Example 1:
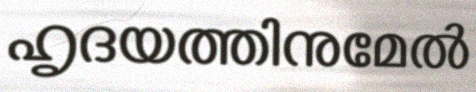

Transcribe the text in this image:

ഹൃദയത്തിനുമേൽ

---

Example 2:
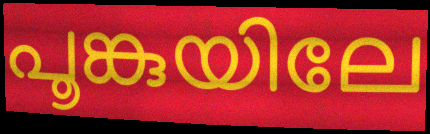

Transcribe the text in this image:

പൂങ്കുയിലേ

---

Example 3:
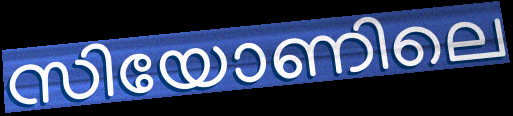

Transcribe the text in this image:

സിയോണിലെ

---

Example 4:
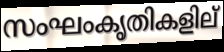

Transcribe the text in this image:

സംഘംകൃതികളില്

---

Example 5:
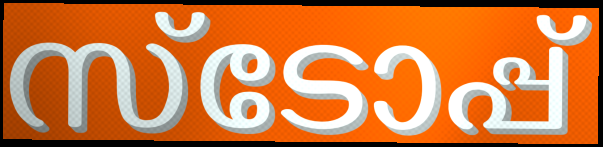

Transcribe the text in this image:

സ്ടോപ്പ്